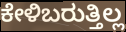
ಕೇಳಿಬರುತ್ತಿಲ್ಲ